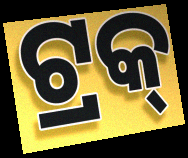
ଟ୍ରକ୍